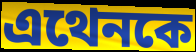
এথেনকে